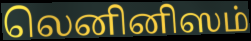
லெனினிஸம்